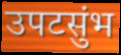
उपटसुंभ